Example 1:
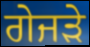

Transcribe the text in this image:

ਗੇਜੜੇ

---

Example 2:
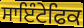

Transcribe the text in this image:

ਸਾਇੰਟੇਫਿਕ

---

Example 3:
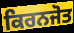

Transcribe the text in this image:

ਕਿਰਨਜੋਤ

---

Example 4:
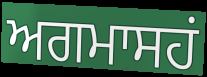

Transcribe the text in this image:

ਅਗਮਾਸਹਂ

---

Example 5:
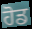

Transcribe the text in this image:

ਹੋਡ